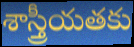
శాస్త్రీయతకు